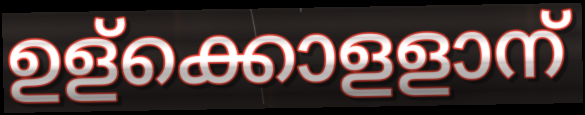
ഉള്ക്കൊളളാന്